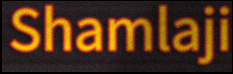
Shamlaji